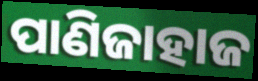
ପାଣିଜାହାଜ